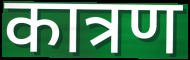
कात्रण